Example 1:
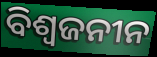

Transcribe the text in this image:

ବିଶ୍ୱଜନୀନ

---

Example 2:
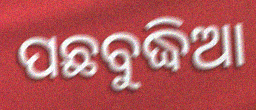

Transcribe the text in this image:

ପଛବୁଦ୍ଧିଆ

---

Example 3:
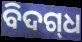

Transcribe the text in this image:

ବିଦଗ୍‌ଧ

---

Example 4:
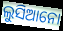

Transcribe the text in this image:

ଲୁସିଆନୋ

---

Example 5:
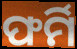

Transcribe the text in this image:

ଫର୍ମି